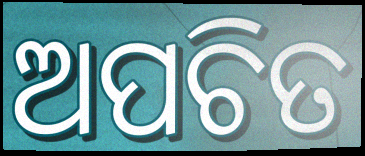
ଅପଚିତ